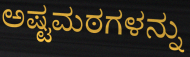
ಅಷ್ಟಮಠಗಳನ್ನು